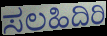
ಸಲಹಿದಿರಿ